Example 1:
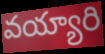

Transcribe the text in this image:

వయ్యారి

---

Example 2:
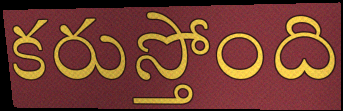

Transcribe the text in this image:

కరుస్తోంది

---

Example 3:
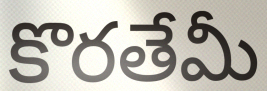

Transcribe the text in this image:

కొరతేమీ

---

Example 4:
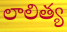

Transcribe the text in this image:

లాలిత్య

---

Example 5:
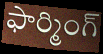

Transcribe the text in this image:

ఫార్మింగ్